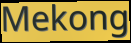
Mekong